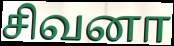
சிவனா